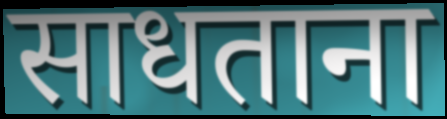
साधताना